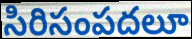
సిరిసంపదలూ